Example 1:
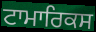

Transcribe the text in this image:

ਟਾਮਾਰਿਕਸ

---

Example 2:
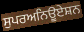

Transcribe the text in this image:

ਸੁਪਰਅਨਿਊਏਸ਼ਨ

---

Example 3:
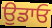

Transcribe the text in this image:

ਉਡਾਓ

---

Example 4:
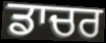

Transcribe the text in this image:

ਡਾਚਰ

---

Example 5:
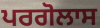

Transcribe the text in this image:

ਪਰਗੋਲਾਸ